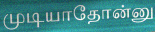
முடியாதோன்னு